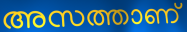
അസത്താണ്